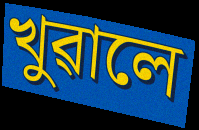
খুৱালে